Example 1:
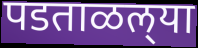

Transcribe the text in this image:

पडताळल्या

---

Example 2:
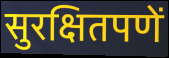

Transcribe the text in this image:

सुरक्षितपणें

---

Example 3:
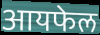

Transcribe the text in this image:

आयफेल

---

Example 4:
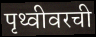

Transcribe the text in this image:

पृथ्वीवरची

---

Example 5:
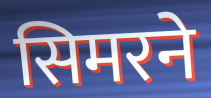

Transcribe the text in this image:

सिमरने